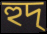
হুদ্